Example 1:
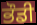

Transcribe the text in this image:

ਭੌਡੀ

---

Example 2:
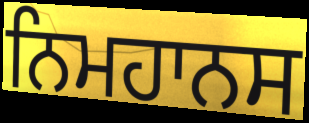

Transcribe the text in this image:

ਨਿਮਹਾਨਸ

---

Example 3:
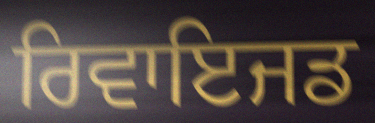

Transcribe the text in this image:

ਰਿਵਾਇਜਡ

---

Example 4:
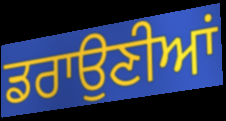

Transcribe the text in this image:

ਡਰਾਉਣੀਆਂ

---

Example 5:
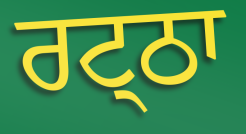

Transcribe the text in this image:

ਰਟ੍ਠਾ